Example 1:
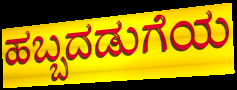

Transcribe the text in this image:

ಹಬ್ಬದಡುಗೆಯ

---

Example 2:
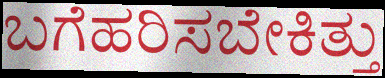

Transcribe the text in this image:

ಬಗೆಹರಿಸಬೇಕಿತ್ತು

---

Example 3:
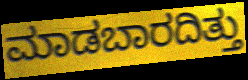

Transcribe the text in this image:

ಮಾಡಬಾರದಿತ್ತು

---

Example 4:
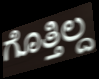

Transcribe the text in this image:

ಗೊತ್ತಿಲ್ದ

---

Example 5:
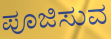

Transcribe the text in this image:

ಪೂಜಿಸುವ